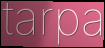
tarpa